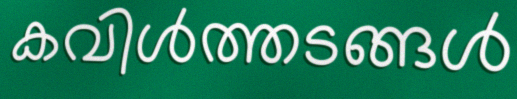
കവിൾത്തടങ്ങൾ